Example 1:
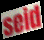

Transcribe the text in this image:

seid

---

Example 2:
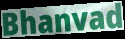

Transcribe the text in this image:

Bhanvad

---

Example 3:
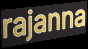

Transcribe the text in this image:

rajanna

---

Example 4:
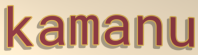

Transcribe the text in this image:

kamanu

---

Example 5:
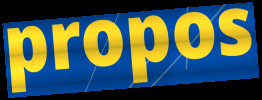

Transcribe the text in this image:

propos